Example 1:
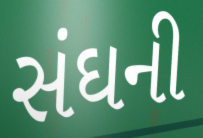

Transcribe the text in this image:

સંઘની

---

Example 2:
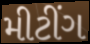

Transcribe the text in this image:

મીટીંગ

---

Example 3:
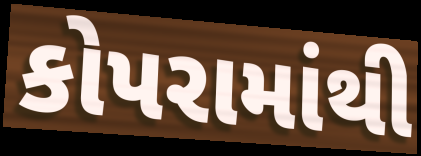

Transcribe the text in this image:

કોપરામાંથી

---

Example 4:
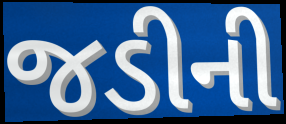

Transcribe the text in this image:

જડીની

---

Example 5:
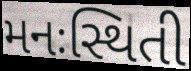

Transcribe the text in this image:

મનઃસ્થિતી